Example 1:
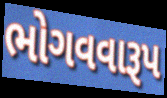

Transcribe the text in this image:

ભોગવવારૂપ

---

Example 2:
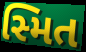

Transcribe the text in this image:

સ્મિત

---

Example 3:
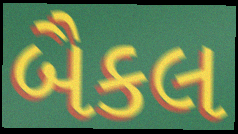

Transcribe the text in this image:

બૈકલ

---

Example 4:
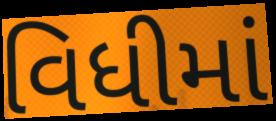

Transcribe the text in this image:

વિધીમાં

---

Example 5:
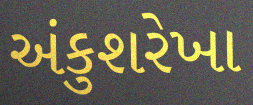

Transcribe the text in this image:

અંકુશરેખા